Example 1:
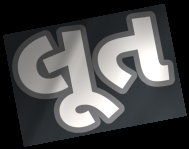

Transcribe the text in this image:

લૂત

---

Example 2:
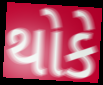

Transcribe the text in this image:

થોકે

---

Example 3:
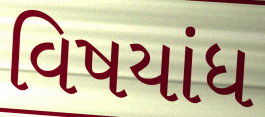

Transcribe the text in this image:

વિષયાંધ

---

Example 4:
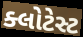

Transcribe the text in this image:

ક્લોટેસ્ટ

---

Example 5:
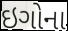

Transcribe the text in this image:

ઇગોના